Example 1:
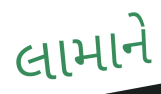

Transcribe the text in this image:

લામાને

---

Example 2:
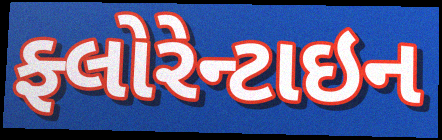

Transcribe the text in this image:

ફ્લોરેન્ટાઇન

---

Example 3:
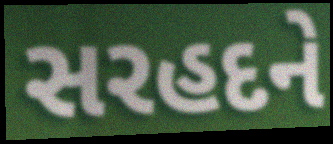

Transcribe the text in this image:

સરહદને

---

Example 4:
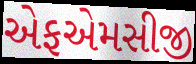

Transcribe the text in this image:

એફએમસીજી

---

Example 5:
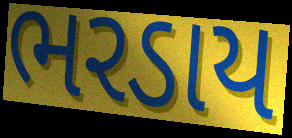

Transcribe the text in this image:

ભરડાય